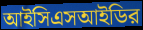
আইসিএসআইডির